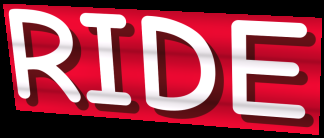
RIDE